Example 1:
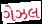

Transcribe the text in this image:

ગેઝલ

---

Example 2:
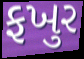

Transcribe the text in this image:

ફખુર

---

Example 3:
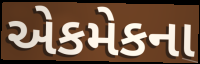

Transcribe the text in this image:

એકમેકના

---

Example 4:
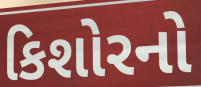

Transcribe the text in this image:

કિશોરનો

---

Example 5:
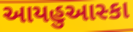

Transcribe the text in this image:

આયહુઆસ્કા